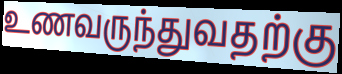
உணவருந்துவதற்கு